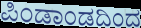
ಪಿಂಡಾಂಡದಿಂದ